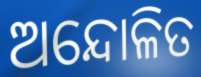
ଅନ୍ଦୋଳିତ